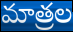
మాత్రల